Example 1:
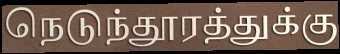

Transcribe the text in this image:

நெடுந்தூரத்துக்கு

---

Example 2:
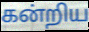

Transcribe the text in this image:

கன்றிய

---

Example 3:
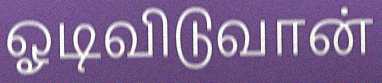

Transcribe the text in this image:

ஓடிவிடுவான்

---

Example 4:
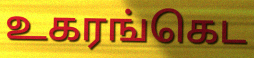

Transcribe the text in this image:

உகரங்கெட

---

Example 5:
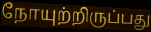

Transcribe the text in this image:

நோயுற்றிருப்பது